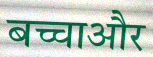
बच्चाऔर